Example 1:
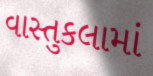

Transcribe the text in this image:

વાસ્તુકલામાં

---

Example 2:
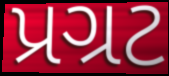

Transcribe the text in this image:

પ્રગ્રટ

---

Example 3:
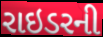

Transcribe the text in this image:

રાઇડરની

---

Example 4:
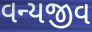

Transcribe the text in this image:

વન્યજીવ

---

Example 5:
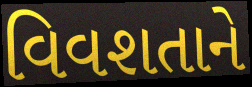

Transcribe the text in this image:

વિવશતાને